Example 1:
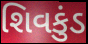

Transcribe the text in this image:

શિવકુંડ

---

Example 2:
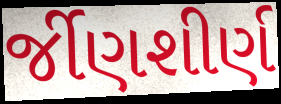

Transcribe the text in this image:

ર્જીણશીર્ણ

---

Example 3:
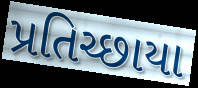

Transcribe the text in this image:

પ્રતિચ્છાયા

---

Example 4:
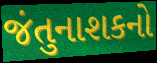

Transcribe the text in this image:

જંતુનાશકનો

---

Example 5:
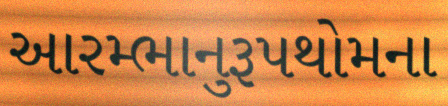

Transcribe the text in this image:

આરમ્ભાનુરૂપથોમના